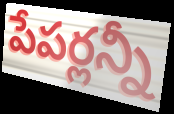
పేపర్లన్నీ